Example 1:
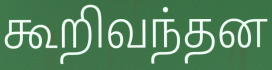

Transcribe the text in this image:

கூறிவந்தன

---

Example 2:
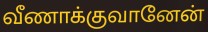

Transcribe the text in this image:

வீணாக்குவானேன்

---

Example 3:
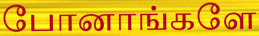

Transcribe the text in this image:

போனாங்களே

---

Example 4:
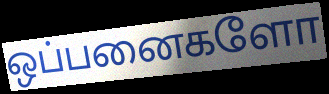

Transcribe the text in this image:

ஒப்பனைகளோ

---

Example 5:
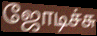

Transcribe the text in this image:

ஜோடிச்சு